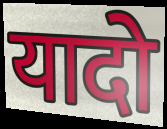
यादो